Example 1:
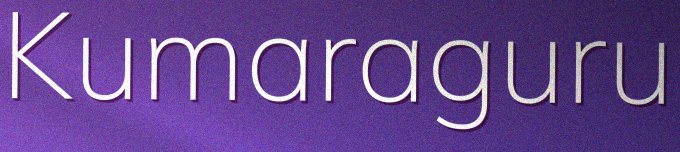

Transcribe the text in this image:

Kumaraguru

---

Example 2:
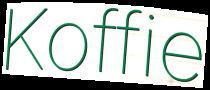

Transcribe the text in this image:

Koffie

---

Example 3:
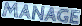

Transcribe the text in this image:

MANAGE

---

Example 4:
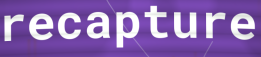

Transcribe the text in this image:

recapture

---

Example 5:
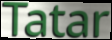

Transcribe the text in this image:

Tatar